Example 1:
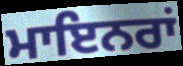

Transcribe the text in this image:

ਮਾਇਨਰਾਂ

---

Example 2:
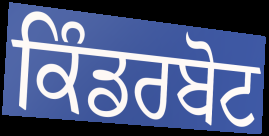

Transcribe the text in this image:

ਕਿੰਡਰਬੋਟ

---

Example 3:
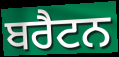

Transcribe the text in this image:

ਬਰੈਟਨ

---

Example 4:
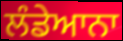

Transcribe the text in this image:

ਲੰਡੇਆਨਾ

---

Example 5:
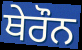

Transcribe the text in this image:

ਥੇਰੌਨ